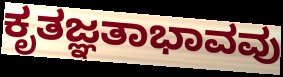
ಕೃತಜ್ಞತಾಭಾವವು